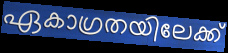
ഏകാഗ്രതയിലേക്ക്